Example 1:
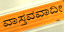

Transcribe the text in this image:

ವಾಸ್ತವವಾದೀ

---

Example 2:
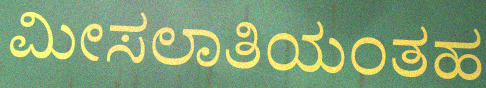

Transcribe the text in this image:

ಮೀಸಲಾತಿಯಂತಹ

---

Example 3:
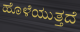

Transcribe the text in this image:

ಹೊಳೆಯುತ್ತದೆ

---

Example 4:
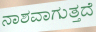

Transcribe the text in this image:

ನಾಶವಾಗುತ್ತದೆ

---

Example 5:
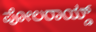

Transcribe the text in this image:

ಪೋಲರಾಯ್ಡ್